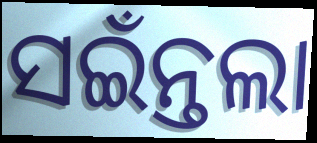
ସଇଁନ୍ତଲା